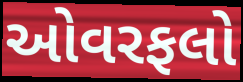
ઓવરફલો